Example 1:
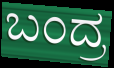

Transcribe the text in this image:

ಬಂದ್ರ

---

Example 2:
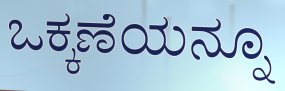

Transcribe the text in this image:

ಒಕ್ಕಣೆಯನ್ನೂ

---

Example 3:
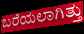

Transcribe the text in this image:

ಬರೆಯಲಾಗಿತ್ತು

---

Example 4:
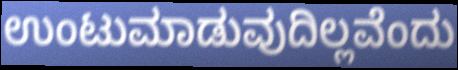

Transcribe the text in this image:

ಉಂಟುಮಾಡುವುದಿಲ್ಲವೆಂದು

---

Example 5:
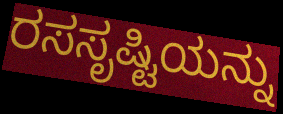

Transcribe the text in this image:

ರಸಸೃಷ್ಟಿಯನ್ನು